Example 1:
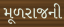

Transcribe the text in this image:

મૂળરાજની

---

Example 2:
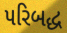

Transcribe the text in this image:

પરિબદ્ધ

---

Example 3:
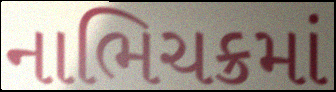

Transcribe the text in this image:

નાભિચક્રમાં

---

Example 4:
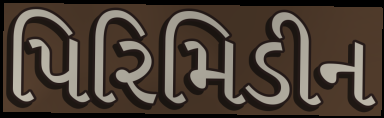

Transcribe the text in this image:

પિરિમિડીન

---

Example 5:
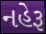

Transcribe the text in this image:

નહેરૂ